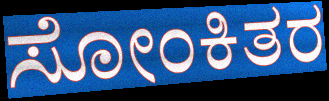
ಸೋಂಕಿತರ